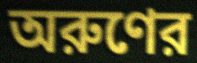
অরুণের